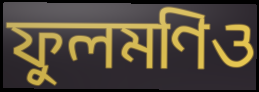
ফুলমণিও